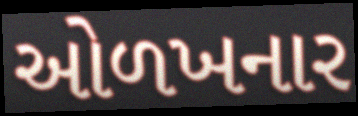
ઓળખનાર